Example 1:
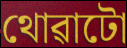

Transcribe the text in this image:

থোৱাটো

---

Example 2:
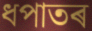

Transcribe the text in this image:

ধপাতৰ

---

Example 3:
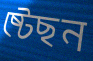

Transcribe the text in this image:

ষ্টেছন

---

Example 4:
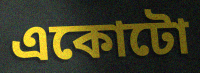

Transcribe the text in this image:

একোটো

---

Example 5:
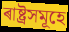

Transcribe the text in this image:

ৰাষ্ট্ৰসমূহে